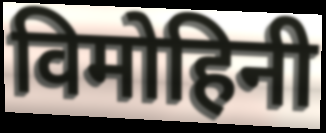
विमोहिनी